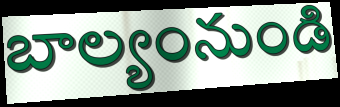
బాల్యంనుండి